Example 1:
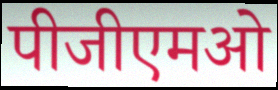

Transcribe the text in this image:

पीजीएमओ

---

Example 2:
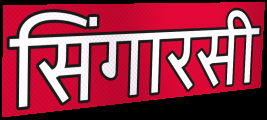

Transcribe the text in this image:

सिंगारसी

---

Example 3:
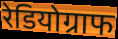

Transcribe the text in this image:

रेडियोग्राफ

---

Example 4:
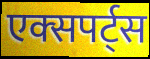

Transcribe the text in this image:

एक्‍सपर्ट्स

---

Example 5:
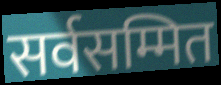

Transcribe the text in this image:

सर्वसम्मित